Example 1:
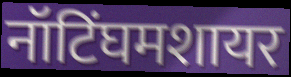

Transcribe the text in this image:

नॉटिंघमशायर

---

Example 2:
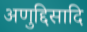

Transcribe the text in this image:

अणुद्दिसादि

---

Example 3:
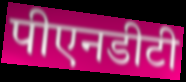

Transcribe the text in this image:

पीएनडीटी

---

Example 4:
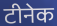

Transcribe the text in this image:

टीनेक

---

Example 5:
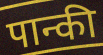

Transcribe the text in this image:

पान्की